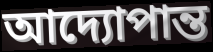
আদ্যোপান্ত